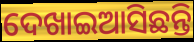
ଦେଖାଇଆସିଛନ୍ତି